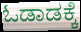
ಓಡಾಡಕ್ಕೆ